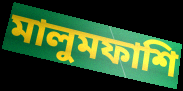
মালুমফাশি